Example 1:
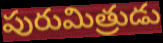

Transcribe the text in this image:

పురుమిత్రుడు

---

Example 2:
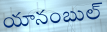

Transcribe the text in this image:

యానంబుల్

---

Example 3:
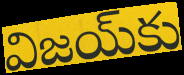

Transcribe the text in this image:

విజయ్‌కు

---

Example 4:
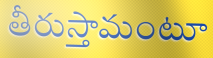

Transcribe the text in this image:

తీరుస్తామంటూ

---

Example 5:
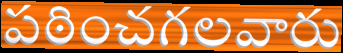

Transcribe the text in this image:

పఠించగలవారు